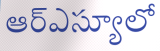
ఆర్ఎస్యూలో